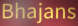
Bhajans